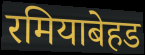
रमियाबेहड